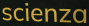
scienza